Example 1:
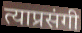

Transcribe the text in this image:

त्याप्रसंगी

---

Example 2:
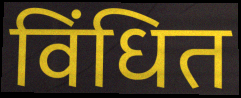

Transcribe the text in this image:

विंधित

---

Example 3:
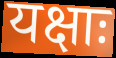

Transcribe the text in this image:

यक्षाः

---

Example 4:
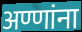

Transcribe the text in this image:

अण्णांना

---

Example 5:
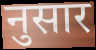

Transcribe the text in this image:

नुसार